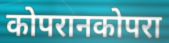
कोपरानकोपरा